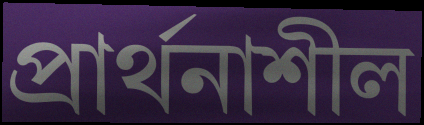
প্রার্থনাশীল